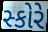
સ્કોરે